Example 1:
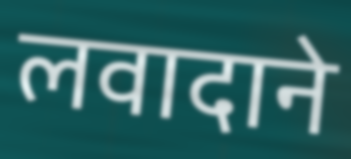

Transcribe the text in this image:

लवादाने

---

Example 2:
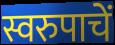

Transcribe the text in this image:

स्वरुपाचें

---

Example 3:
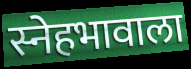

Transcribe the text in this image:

स्नेहभावाला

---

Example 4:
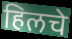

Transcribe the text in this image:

हिलचे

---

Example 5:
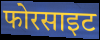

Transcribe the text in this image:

फोरसाइट